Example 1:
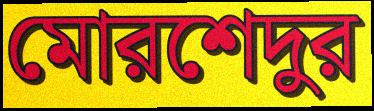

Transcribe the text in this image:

মোরশেদুর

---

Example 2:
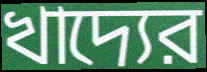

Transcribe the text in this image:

খাদ্যের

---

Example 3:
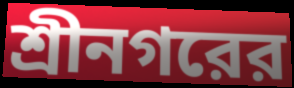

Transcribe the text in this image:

শ্রীনগরের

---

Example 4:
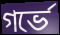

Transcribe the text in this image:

গর্ভে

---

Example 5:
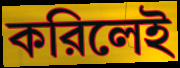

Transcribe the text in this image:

করিলেই